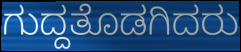
ಗುದ್ದತೊಡಗಿದರು